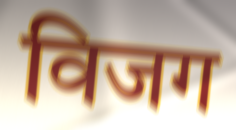
विजग